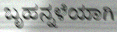
ಬೃಹನ್ನಳೆಯಾಗಿ